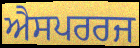
ਐਸਪਰਰਜ